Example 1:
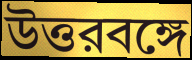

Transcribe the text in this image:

উত্তরবঙ্গে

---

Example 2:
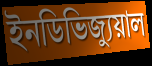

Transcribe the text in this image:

ইনডিভিজ্যুয়াল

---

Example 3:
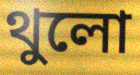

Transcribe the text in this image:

থুলো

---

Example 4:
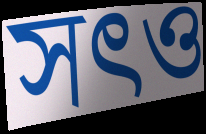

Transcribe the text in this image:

সৎও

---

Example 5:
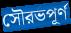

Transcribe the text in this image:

সৌরভপূর্ণ